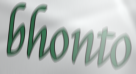
bhonto